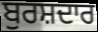
ਬੁਰਸ਼ਦਾਰ